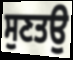
ਸੁਣਤਉ